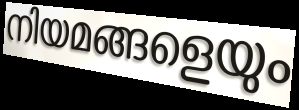
നിയമങ്ങളെയും